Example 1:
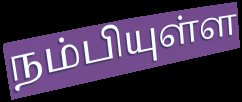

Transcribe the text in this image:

நம்பியுள்ள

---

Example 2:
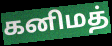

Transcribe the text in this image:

கனிமத்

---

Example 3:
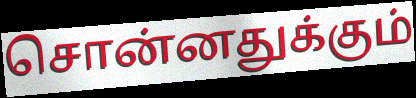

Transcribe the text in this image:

சொன்னதுக்கும்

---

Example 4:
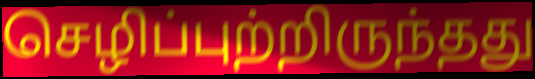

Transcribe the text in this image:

செழிப்புற்றிருந்தது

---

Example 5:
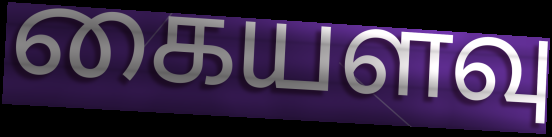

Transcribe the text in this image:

கையளவு